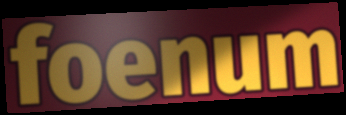
foenum